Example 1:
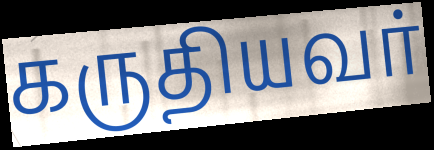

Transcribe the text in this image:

கருதியவர்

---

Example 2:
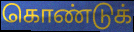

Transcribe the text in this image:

கொண்டுக்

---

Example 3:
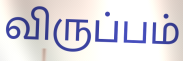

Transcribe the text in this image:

விருப்பம்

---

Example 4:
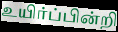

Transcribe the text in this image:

உயிர்ப்பின்றி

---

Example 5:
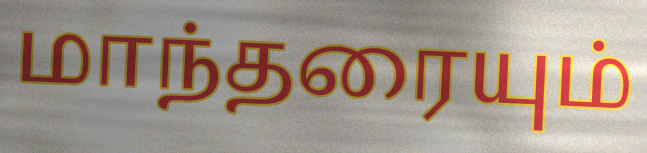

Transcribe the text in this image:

மாந்தரையும்